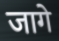
जागे